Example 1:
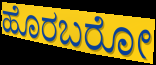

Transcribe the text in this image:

ಹೊರಬರೋ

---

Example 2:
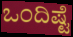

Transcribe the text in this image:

ಒಂದಿಷ್ಟೆ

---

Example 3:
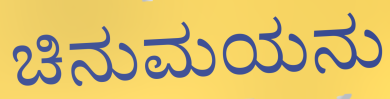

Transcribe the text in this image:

ಚಿನುಮಯನು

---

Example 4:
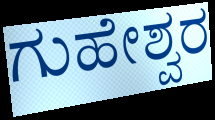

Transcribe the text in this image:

ಗುಹೇಶ್ವರ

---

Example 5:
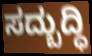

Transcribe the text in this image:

ಸದ್ಬುದ್ಧಿ